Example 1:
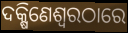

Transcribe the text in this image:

ଦକ୍ଷିଣେଶ୍ୱରଠାରେ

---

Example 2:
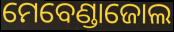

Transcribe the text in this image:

ମେବେଣ୍ଡାଜୋଲ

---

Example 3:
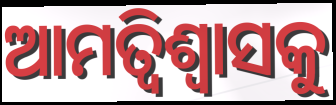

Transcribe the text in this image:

ଆମତ୍ବିଶ୍ୱାସକୁ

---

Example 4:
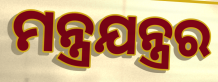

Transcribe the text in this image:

ମନ୍ତ୍ରଯନ୍ତ୍ରର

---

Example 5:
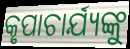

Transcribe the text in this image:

କୃପାଚାର୍ଯ୍ୟଙ୍କୁ